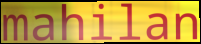
mahilan